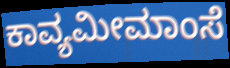
ಕಾವ್ಯಮೀಮಾಂಸೆ